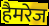
हैमरेज